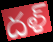
దళ్